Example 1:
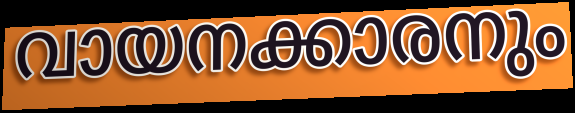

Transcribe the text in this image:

വായനക്കാരനും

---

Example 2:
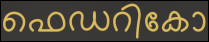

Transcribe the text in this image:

ഫെഡറികോ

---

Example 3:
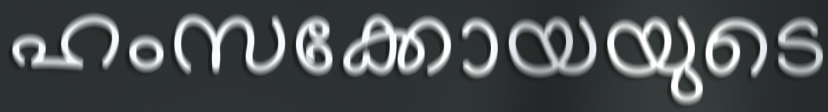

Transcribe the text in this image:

ഹംസക്കോയയുടെ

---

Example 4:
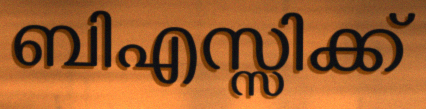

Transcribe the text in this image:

ബിഎസ്സിക്ക്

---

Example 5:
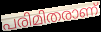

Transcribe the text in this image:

പരിമിതരാണ്